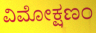
ವಿಮೋಕ್ಷಣಂ